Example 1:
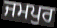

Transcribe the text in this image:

ਜਮਪੁਰ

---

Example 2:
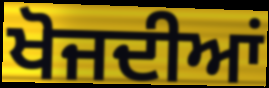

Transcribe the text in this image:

ਖੋਜਦੀਆਂ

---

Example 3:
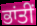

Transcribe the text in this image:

ਭਾਂਤੀਂ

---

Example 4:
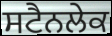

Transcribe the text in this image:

ਸਟੈਨਲੇਕ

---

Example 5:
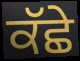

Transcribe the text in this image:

ਕੱਛੇ